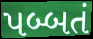
પબ્બતં